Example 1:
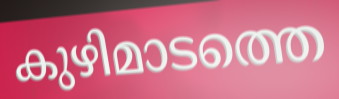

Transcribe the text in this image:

കുഴിമാടത്തെ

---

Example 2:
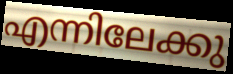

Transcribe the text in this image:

എന്നിലേക്കു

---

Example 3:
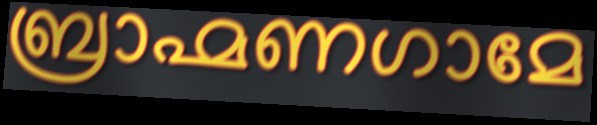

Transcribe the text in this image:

ബ്രാഹ്മണഗാമേ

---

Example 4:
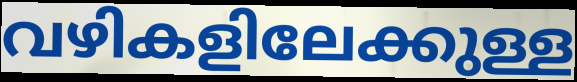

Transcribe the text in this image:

വഴികളിലേക്കുള്ള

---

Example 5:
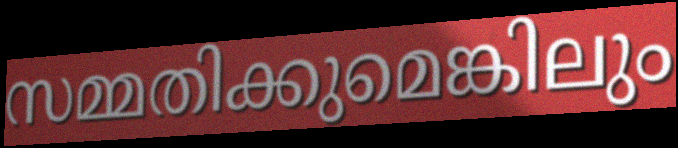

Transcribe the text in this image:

സമ്മതിക്കുമെങ്കിലും